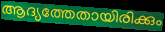
ആദ്യത്തേതായിരിക്കും